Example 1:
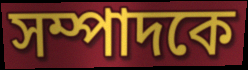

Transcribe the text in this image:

সম্পাদকে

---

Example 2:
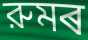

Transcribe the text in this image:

ৰুমৰ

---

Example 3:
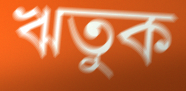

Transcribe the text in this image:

ঋতুক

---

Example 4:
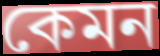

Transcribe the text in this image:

কেমন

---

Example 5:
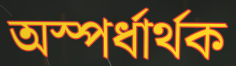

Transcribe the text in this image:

অস্পৰ্ধাৰ্থক